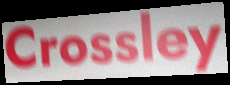
Crossley